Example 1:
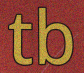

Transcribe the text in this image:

tb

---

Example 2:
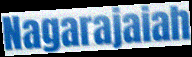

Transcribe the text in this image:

Nagarajaiah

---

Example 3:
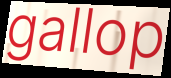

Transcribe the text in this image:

gallop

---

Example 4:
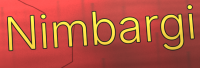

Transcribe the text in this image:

Nimbargi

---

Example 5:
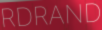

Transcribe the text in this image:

RDRAND